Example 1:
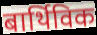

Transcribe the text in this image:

बार्थिविक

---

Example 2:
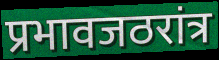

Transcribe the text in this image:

प्रभावजठरांत्र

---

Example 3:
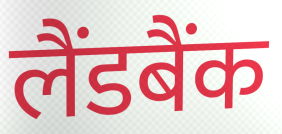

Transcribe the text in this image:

लैंडबैंक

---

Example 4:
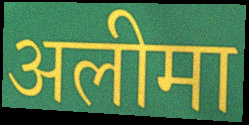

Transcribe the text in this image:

अलीमा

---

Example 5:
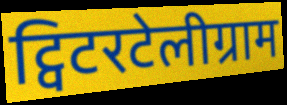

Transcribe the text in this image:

ट्विटरटेलीग्राम